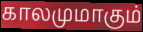
காலமுமாகும்